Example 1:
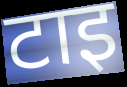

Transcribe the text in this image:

टाइ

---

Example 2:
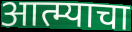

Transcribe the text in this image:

आत्म्याचा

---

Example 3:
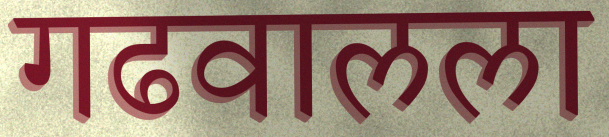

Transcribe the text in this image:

गढवालला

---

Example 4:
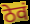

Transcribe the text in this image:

ठेवं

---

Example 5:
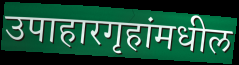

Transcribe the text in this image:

उपाहारगृहांमधील